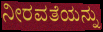
ನೀರವತೆಯನ್ನು